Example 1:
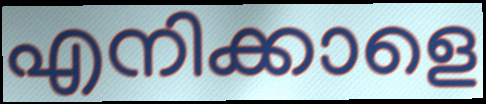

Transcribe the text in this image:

എനിക്കാളെ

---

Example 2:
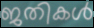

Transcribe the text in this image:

ജതികൾ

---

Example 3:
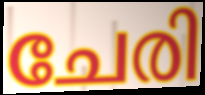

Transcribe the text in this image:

ചേരി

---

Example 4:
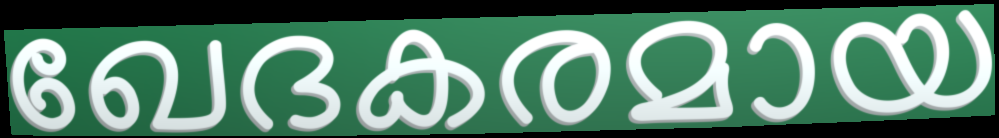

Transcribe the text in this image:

ഖേദകരമായ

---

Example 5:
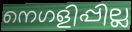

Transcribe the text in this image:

നെഗളിപ്പില്ല